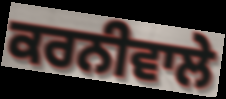
ਕਰਨੀਵਾਲੇ